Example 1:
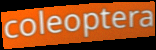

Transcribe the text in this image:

coleoptera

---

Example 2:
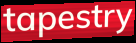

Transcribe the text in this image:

tapestry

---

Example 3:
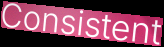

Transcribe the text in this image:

Consistent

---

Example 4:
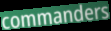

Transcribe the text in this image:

commanders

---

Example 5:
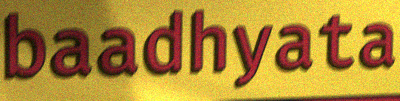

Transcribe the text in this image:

baadhyata